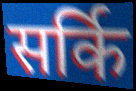
सर्कि